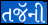
તજૅની